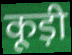
कूड़ी